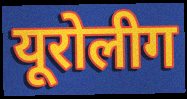
यूरोलीग